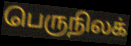
பெருநிலக்